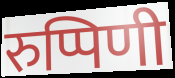
रुप्पिणी